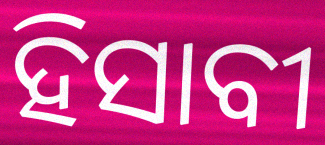
ହିସାବୀ